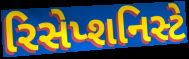
રિસેપ્શનિસ્ટે